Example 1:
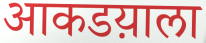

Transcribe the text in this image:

आकडय़ाला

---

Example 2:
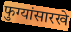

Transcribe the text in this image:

फुग्यांसारखे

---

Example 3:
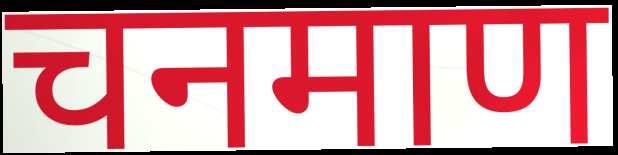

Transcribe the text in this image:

चनमाण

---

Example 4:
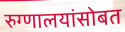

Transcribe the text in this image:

रुग्णालयांसोबत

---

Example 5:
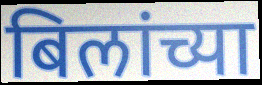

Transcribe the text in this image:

बिलांच्या